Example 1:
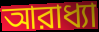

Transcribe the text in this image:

আরাধ্যা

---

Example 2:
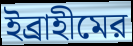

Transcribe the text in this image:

ইব্রাহীমের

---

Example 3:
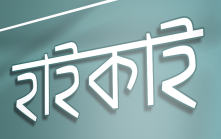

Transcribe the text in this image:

হাইকাই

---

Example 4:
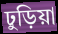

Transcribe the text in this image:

ঢুড়িয়া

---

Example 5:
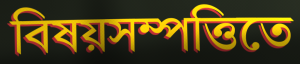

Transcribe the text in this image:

বিষয়সম্পত্তিতে